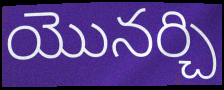
యొనర్చి